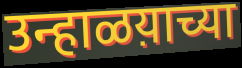
उन्हाळय़ाच्या